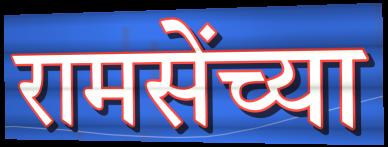
रामसेंच्या